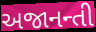
અજાનન્તી